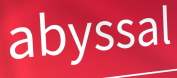
abyssal